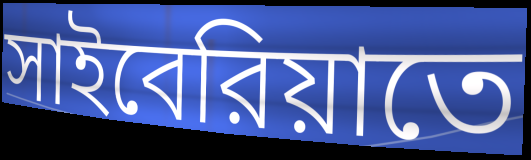
সাইবেরিয়াতে